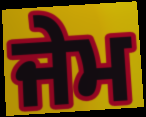
ਜੇਮ